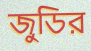
জুডির